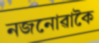
নজনোৱাকৈ